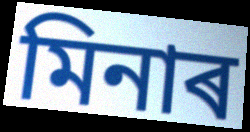
মিনাৰ